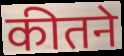
कीतने